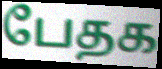
பேதக